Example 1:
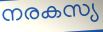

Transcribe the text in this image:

നരകസ്യ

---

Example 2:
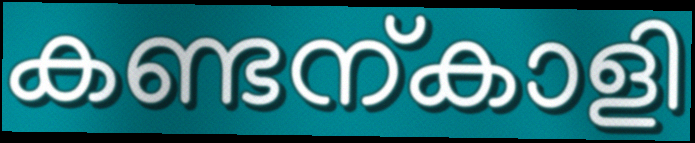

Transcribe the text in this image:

കണ്ടന്കാളി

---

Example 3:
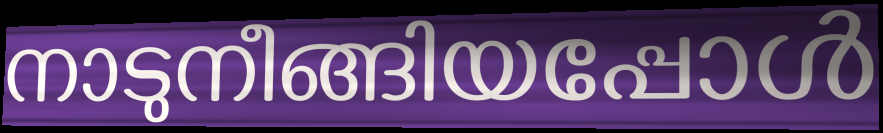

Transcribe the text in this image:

നാടുനീങ്ങിയപ്പോൾ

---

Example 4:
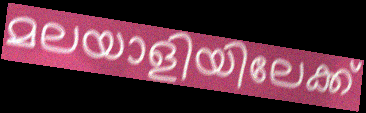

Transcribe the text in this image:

മലയാളിയിലേക്ക്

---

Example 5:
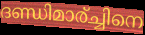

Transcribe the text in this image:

ദണ്ഡിമാര്ച്ചിനെ